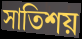
সাতিশয়